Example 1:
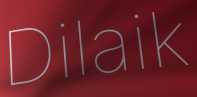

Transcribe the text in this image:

Dilaik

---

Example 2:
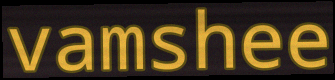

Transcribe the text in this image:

vamshee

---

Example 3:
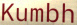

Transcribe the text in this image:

Kumbh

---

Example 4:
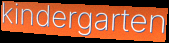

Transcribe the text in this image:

kindergarten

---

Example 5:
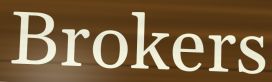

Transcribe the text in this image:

Brokers